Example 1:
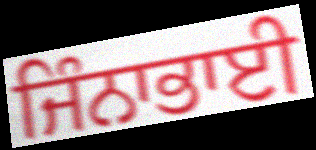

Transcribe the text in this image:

ਜਿੰਨਾਭਾਈ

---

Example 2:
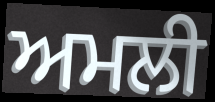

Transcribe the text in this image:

ਅਮਲੀ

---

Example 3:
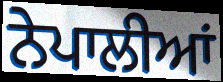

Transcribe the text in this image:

ਨੇਪਾਲੀਆਂ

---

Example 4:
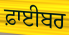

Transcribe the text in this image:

ਫ਼ਾਈਬਰ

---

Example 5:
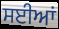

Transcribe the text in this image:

ਸਈਆਂ